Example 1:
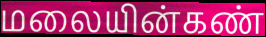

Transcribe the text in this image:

மலையின்கண்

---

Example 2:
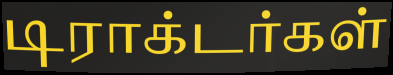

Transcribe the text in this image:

டிராக்டர்கள்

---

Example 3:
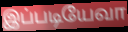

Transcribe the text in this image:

இப்படியேவா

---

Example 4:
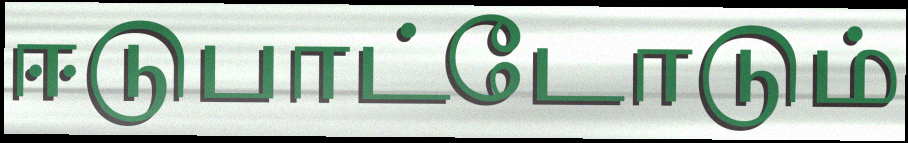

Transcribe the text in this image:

ஈடுபாட்டோடும்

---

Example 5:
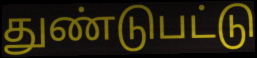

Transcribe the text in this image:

துண்டுபட்டு